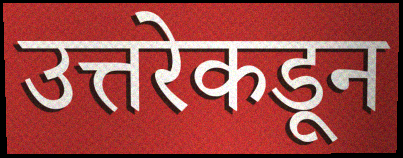
उत्तरेकडून